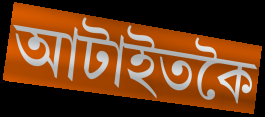
আটাইতকৈ